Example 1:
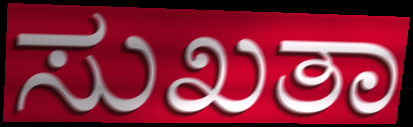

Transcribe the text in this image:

ಸುಖತಾ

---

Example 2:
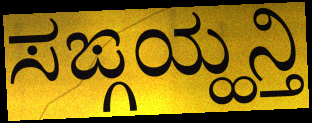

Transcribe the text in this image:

ಸಙ್ಗಯ್ಹನ್ತಿ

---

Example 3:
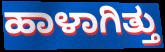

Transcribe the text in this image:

ಹಾಳಾಗಿತ್ತು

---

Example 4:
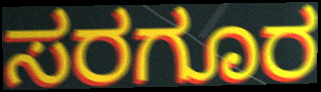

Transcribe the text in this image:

ಸರಗೂರ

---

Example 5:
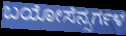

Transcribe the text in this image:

ಬಯೋಸೆನ್ಸರ್ಗಳ